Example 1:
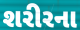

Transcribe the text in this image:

શરીરના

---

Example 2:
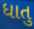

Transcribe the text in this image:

ધાતુ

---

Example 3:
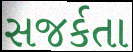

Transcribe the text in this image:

સજર્કતા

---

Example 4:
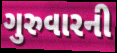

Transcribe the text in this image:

ગુરુવારની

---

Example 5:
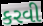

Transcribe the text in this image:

કરવી